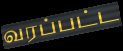
வரப்பட்ட